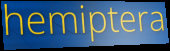
hemiptera